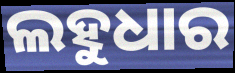
ଲହୁଧାର